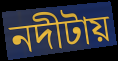
নদীটায়